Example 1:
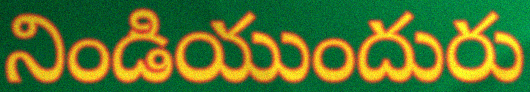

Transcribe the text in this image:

నిండియుందురు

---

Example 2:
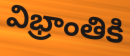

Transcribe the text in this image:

విభ్రాంతికి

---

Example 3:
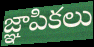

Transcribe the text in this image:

జ్ఞాపికలు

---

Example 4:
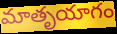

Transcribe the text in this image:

మాతృయాగం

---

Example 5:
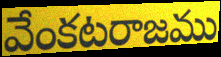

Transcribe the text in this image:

వేంకటరాజము